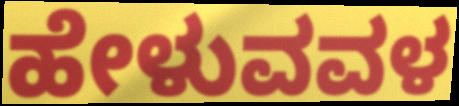
ಹೇಳುವವಳ